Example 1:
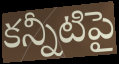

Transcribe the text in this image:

కన్నీటిపై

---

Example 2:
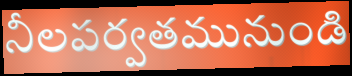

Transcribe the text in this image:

నీలపర్వతమునుండి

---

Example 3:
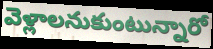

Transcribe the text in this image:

వెళ్లాలనుకుంటున్నారో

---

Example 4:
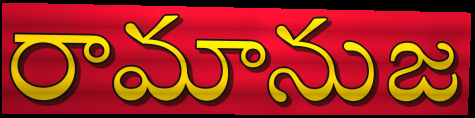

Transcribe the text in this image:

రామానుజ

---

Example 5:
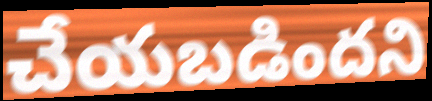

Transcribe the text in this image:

చేయబడిందని